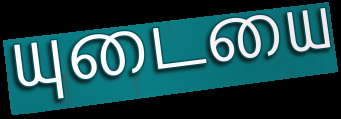
யுடையை